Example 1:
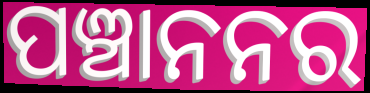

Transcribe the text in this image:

ପଞ୍ଚାନନର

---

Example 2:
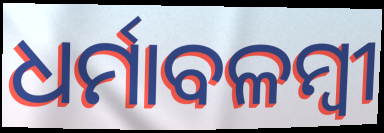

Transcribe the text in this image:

ଧର୍ମାବଳମ୍ବୀ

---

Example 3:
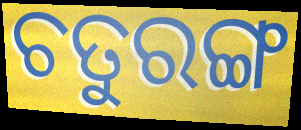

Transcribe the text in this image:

ଚତୁରଙ୍ଗ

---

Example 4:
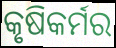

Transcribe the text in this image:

କୃଷିକର୍ମର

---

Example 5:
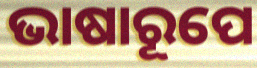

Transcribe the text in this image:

ଭାଷାରୂପେ